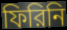
ফিরিনি